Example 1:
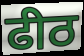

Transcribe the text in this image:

ढीठ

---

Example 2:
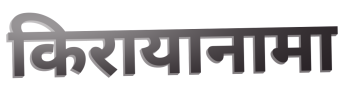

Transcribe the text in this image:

किरायानामा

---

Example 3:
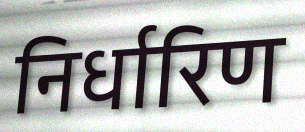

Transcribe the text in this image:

निर्धारिण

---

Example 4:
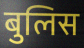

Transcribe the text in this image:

बुलिस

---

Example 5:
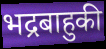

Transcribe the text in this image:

भद्रबाहुकी